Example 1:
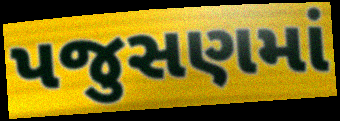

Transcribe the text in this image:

પજુસણમાં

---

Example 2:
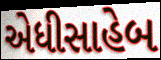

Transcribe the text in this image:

એધીસાહેબ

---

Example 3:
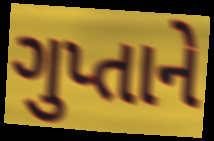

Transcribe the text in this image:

ગુપ્તાને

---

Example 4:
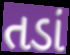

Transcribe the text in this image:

તડાં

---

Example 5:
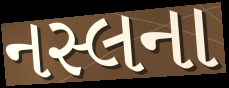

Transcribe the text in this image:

નસ્લના